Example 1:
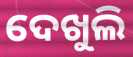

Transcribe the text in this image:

ଦେଖୁଲି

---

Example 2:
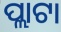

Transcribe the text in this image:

ପ୍ଲାଟା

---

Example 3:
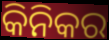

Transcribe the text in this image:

କିନିକର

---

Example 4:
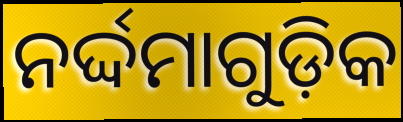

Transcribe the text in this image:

ନର୍ଦ୍ଦମାଗୁଡ଼ିକ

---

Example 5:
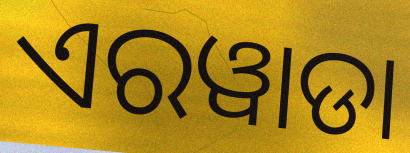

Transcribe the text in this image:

ଏରୱାଡା